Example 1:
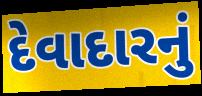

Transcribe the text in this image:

દેવાદારનું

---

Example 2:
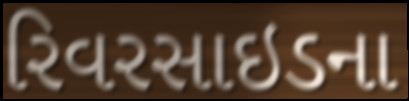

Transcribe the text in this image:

રિવરસાઇડના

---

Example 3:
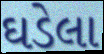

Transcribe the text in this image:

ઘડેલા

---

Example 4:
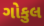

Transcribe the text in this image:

ગોકુલ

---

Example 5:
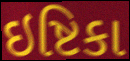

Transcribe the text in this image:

ઇષ્ટિકા